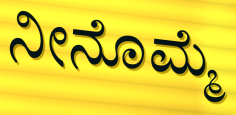
ನೀನೊಮ್ಮೆ